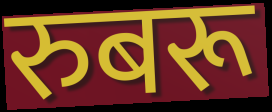
रुबरू